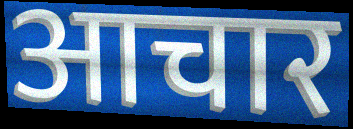
आचार